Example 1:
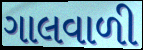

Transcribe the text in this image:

ગાલવાળી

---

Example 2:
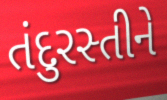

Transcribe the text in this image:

તંદુરસ્તીને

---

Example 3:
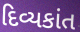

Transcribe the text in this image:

દિવ્યકાંત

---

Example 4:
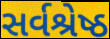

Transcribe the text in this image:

સર્વશ્રેષ્ઠ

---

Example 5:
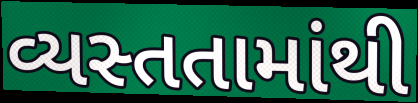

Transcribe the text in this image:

વ્યસ્તતામાંથી